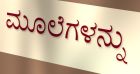
ಮೂಲೆಗಳನ್ನು